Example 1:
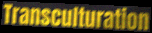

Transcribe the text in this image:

Transculturation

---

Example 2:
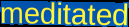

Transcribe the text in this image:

meditated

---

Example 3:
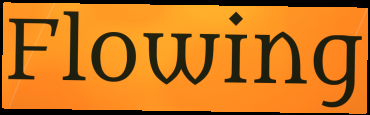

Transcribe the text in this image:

Flowing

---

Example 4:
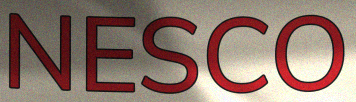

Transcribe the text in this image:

NESCO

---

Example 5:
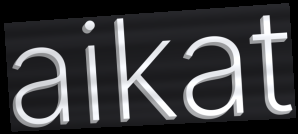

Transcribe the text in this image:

aikat